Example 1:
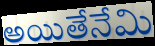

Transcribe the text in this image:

అయితేనేమి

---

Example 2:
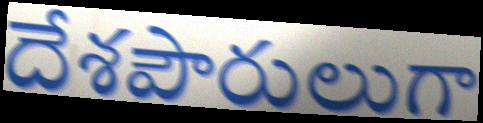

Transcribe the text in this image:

దేశపౌరులుగా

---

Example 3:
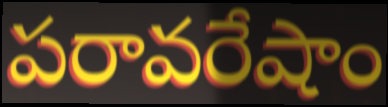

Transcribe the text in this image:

పరావరేషాం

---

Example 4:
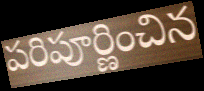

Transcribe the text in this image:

పరిపూర్ణించిన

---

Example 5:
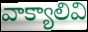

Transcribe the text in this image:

వాక్యాలివి